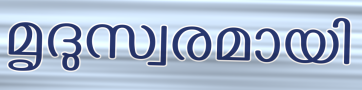
മൃദുസ്വരമായി